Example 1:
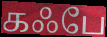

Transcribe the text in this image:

கஃபே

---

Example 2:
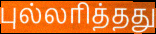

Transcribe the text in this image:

புல்லரித்தது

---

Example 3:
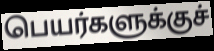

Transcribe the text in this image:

பெயர்களுக்குச்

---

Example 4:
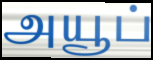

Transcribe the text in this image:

அயூப்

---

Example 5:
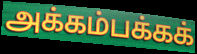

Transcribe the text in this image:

அக்கம்பக்கக்